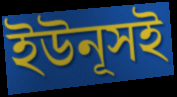
ইউনূসই